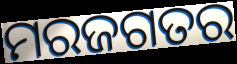
ମରଜଗତର